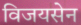
विजयसेन